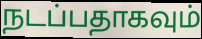
நடப்பதாகவும்